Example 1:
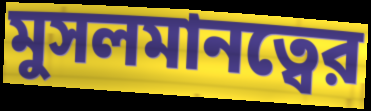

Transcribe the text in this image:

মুসলমানত্বের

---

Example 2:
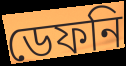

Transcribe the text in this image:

ডেফনি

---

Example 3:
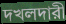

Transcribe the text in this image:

দখলদারী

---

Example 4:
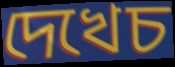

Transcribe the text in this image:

দেখেচ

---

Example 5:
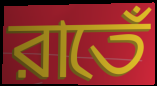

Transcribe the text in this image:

রাতেঁ